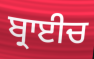
ਬ੍ਰਾਈਚ